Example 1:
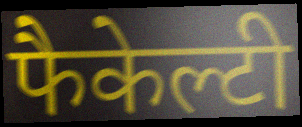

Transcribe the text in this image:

फैकेल्टी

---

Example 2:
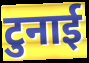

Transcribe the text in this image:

टुनाई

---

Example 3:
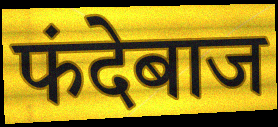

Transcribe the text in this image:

फंदेबाज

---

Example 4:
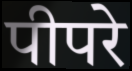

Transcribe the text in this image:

पीपरे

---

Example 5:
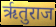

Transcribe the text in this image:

ऋृतुराज